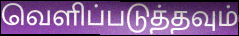
வெளிப்படுத்தவும்